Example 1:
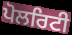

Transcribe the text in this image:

ਪੋਲਰਿਟੀ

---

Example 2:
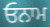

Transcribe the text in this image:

ਓਨਾਮ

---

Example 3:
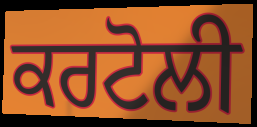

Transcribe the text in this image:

ਕਰਟੋਲੀ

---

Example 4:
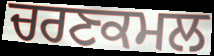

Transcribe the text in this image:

ਚਰਣਕਮਲ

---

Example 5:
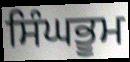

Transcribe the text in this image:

ਸਿੰਘਭੂਮ